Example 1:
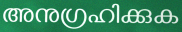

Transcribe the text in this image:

അനുഗ്രഹിക്കുക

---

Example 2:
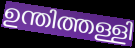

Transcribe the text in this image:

ഉന്തിത്തള്ളി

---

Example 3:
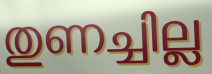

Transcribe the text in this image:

തുണച്ചില്ല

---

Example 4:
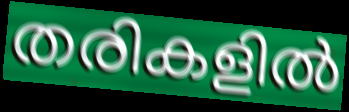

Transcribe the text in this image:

തരികളിൽ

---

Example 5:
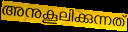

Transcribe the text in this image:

അനുകൂലിക്കുന്നത്